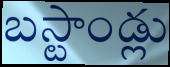
బస్టాండ్లు